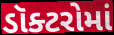
ડૉક્ટરોમાં